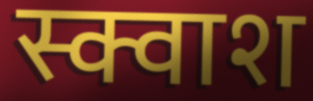
स्क्वाश